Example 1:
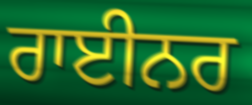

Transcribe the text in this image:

ਰਾਈਨਰ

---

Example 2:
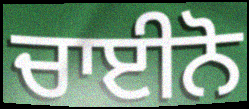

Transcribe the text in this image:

ਚਾਈਨੋ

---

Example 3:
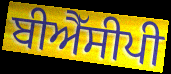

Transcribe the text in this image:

ਬੀਐੱਸੀਪੀ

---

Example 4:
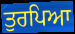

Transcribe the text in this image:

ਤੁਰਪਿਆ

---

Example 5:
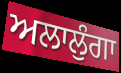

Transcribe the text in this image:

ਅਲਾਲੁੰਗਾ